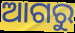
ଆଗରୁ